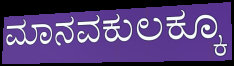
ಮಾನವಕುಲಕ್ಕೂ